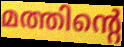
മത്തിന്റെ